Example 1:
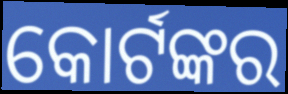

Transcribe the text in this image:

କୋର୍ଟଙ୍କର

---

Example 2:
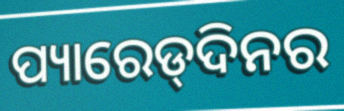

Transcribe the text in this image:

ପ୍ୟାରେଡ୍‌ଦିନର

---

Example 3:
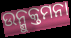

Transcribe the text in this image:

ଉନ୍ମୁକ୍ତମନା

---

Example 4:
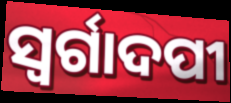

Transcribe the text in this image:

ସ୍ବର୍ଗାଦପୀ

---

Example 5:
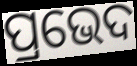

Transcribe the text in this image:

ପ୍ରଭେଦ